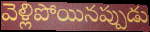
వెళ్లిపోయినప్పుడు